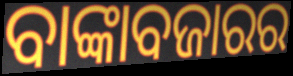
ବାଙ୍କାବଜାରର